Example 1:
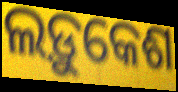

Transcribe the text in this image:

ଲଡ଼ୁକେଶ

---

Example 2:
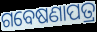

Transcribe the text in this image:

ଗବେଷଣାପତ୍ର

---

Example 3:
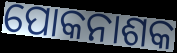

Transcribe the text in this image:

ପୋକନାଶକ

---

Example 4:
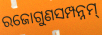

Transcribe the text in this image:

ରଜୋଗୁଣସମ୍ପନ୍ନମ୍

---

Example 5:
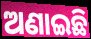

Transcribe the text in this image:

ଅଣାଇଛି